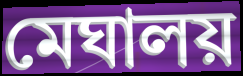
মেঘালয়